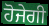
ਹੋਜੇਗੀ